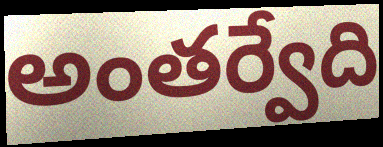
అంతర్వేది